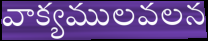
వాక్యములవలన